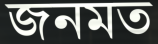
জনমত